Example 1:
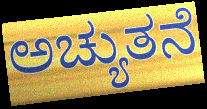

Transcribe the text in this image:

ಅಚ್ಯುತನೆ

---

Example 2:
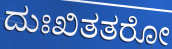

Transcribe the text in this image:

ದುಃಖಿತತರೋ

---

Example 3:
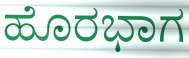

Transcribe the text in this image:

ಹೊರಭಾಗ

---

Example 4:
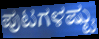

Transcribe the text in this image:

ಪುಟಗಳಷ್ಟು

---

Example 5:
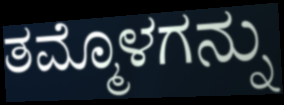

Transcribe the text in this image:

ತಮ್ಮೊಳಗನ್ನು